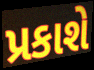
પ્રકાશે